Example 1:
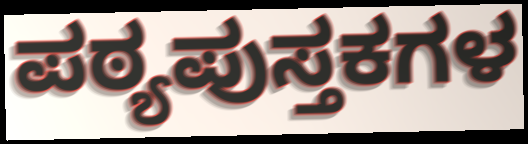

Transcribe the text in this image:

ಪಠ್ಯಪುಸ್ತಕಗಳ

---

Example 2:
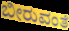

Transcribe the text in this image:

ಬೀರುವಂತೆ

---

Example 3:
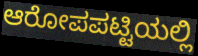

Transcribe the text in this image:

ಆರೋಪಪಟ್ಟಿಯಲ್ಲಿ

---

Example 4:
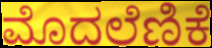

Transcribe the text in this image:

ಮೊದಲೆಣಿಕೆ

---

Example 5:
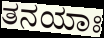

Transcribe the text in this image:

ತನಯಾಃ